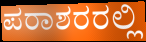
ಪರಾಶರರಲ್ಲಿ